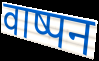
वाष्पन